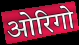
ओरिगो